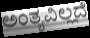
ಅಂತ್ಯವಿಲ್ಲದೆ